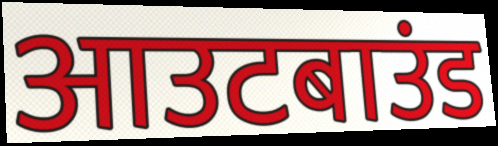
आउटबाउंड